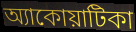
অ্যাকোয়াটিকা